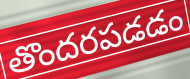
తొందరపడడం